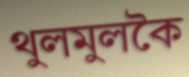
থুলমুলকৈ